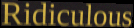
Ridiculous